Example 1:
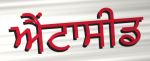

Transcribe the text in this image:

ਐਂਟਾਸੀਡ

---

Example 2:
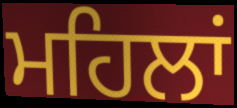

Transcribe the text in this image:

ਮਹਿਲਾਂ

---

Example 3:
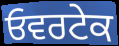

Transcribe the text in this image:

ਓਵਰਟੇਕ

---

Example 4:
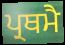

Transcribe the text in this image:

ਪ੍ਰਥਮੈ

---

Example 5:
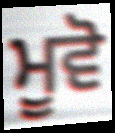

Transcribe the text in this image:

ਮੂਵੋ